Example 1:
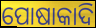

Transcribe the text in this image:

ପୋଷାକାଦି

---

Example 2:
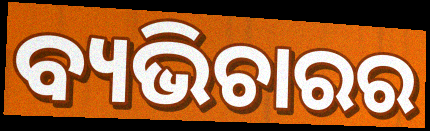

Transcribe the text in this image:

ବ୍ୟଭିଚାରର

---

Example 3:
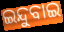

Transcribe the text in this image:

ଇନ୍ଦୁବାଇ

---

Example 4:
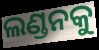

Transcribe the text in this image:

ଲଣ୍ଡନକୁ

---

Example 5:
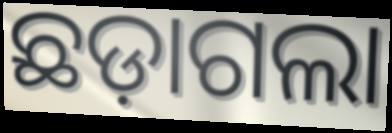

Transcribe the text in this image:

ଛଡ଼ାଗଲା